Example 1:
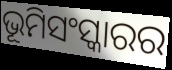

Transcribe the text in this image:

ଭୂମିସଂସ୍କାରର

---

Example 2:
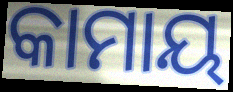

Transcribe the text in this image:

କାମାୟ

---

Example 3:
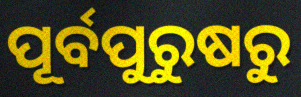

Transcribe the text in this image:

ପୂର୍ବପୁରୁଷରୁ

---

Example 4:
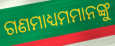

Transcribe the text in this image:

ଗଣମାଧ୍ୟମମାନଙ୍କୁ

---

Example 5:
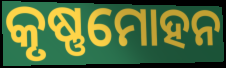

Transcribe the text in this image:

କୃଷ୍ଣମୋହନ